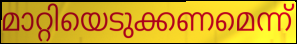
മാറ്റിയെടുക്കണമെന്ന്